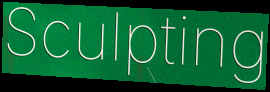
Sculpting